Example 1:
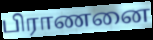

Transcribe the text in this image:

பிராணனை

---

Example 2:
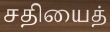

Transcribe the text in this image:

சதியைத்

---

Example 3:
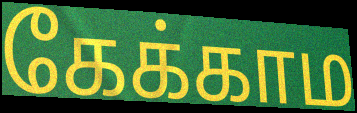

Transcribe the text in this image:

கேக்காம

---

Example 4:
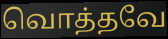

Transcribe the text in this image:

வொத்தவே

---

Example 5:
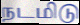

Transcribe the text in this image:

நடமிடு